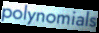
polynomials